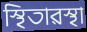
স্থিতাৱস্থা